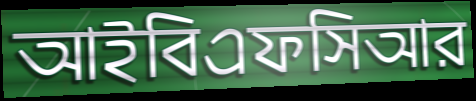
আইবিএফসিআর